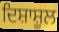
ਦਿਸ਼ਾਸ਼ੂਲ